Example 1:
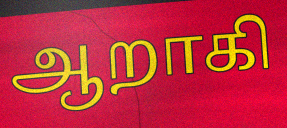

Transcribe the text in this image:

ஆறாகி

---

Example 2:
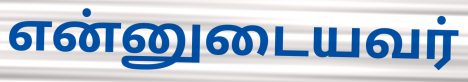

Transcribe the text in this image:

என்னுடையவர்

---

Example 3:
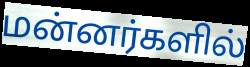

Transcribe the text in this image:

மன்னர்களில்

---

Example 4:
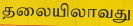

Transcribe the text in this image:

தலையிலாவது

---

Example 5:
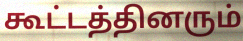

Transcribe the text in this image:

கூட்டத்தினரும்